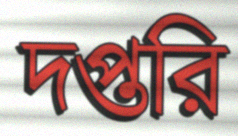
দপ্তরি